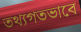
তথ্যগতভাবে